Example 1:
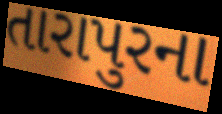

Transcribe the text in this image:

તારાપુરના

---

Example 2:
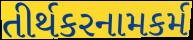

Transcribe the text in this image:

તીર્થકરનામકર્મ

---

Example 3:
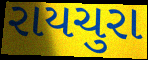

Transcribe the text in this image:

રાયચુરા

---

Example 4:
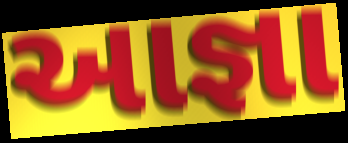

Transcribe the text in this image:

આજ્ઞા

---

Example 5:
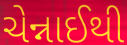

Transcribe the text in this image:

ચેન્નાઈથી